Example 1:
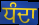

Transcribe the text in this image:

ਧੰਦਾ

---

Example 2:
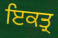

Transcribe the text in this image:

ਇਕਤ੍ਰ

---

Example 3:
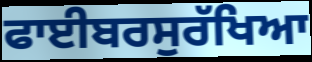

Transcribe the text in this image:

ਫਾਈਬਰਸੁਰੱਖਿਆ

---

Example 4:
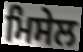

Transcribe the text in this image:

ਮਿਸੇਲ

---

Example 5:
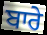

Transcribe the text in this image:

ਬਾਰੇ